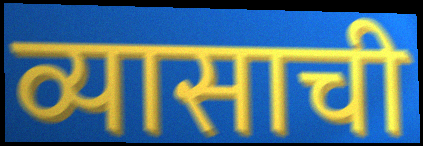
व्यासाची